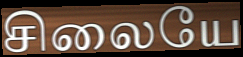
சிலையே